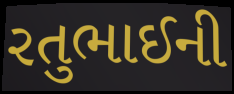
રતુભાઈની